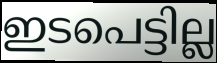
ഇടപെട്ടില്ല